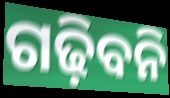
ଗଢ଼ିବନି